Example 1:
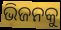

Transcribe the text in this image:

ଭିଜନକୁ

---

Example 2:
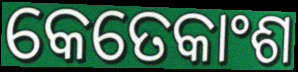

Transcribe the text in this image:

କେତେକାଂଶ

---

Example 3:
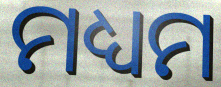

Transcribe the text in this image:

ମଧ୍ୟମ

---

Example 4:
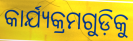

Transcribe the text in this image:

କାର୍ଯ୍ୟକ୍ରମଗୁଡ଼ିକୁ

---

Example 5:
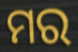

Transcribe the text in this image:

ମର